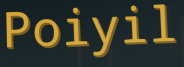
Poiyil